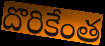
దొరికేంత